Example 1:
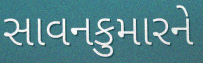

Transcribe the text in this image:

સાવનકુમારને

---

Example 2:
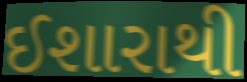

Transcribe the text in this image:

ઈશારાથી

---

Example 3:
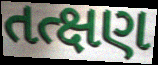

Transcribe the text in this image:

તત્ક્ષણ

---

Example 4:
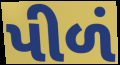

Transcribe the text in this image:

પીળં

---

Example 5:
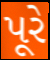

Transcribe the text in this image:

પૂરે